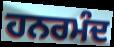
ਹਨਰਮੰਦ